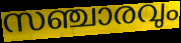
സഞ്ചാരവും